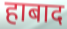
हाबाद